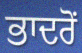
ਭਾਦਰੋਂ